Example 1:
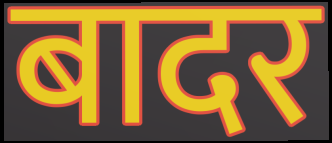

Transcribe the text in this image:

बादर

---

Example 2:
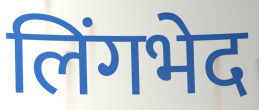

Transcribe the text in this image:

लिंगभेद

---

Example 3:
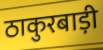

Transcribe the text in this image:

ठाकुरबाड़ी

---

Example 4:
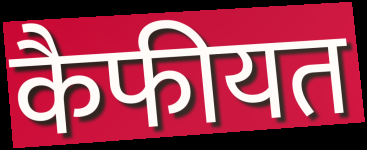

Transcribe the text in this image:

कैफीयत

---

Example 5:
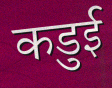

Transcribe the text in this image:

कडुई